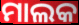
ମାଲକ